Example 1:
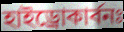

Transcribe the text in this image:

হাইড্রোকার্বনঃ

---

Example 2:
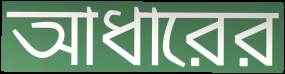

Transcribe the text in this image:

আধারের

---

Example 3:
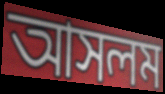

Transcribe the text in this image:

আসলম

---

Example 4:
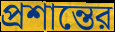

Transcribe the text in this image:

প্রশান্তের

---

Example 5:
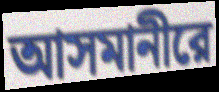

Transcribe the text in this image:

আসমানীরে